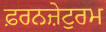
ਫ਼ਰਨਜ਼ੇਟੁਰਮ